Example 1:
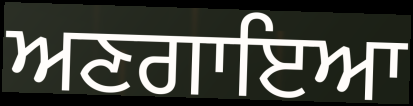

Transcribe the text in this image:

ਅਣਗਾਇਆ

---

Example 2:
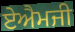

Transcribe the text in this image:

ਏਐਮਜੀ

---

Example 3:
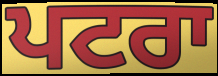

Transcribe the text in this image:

ਪਟਰਾ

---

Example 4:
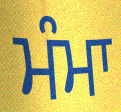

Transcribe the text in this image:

ਮੰਮਾ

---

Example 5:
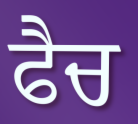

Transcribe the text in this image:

ਫੈਚ